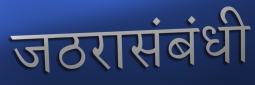
जठरासंबंधी